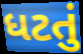
ધટતું